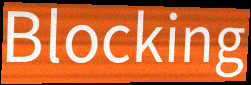
Blocking